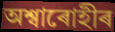
অশ্বাৰোহীৰ